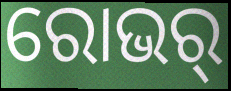
ରୋଭର୍